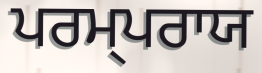
ਪਰਮ੍ਪਰਾਯ